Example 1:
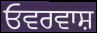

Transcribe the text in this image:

ਓਵਰਵਾਸ਼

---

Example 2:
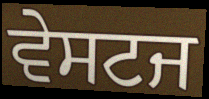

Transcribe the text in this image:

ਵੇਸਟਜ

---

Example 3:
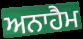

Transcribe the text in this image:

ਅਨਾਹੈਮ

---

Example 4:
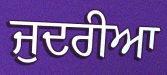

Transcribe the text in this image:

ਜੁਦਰੀਆ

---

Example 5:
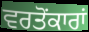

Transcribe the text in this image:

ਵਰਤੋਂਕਾਰਾਂ